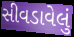
સીવડાવેલું